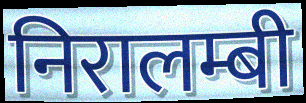
निरालम्बी